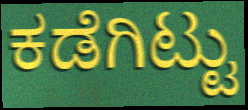
ಕಡೆಗಿಟ್ಟು